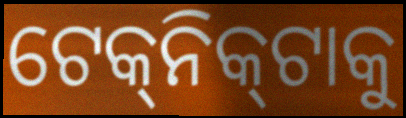
ଟେକ୍‌ନିକ୍‌ଟାକୁ